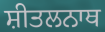
ਸ਼ੀਤਲਨਾਥ